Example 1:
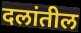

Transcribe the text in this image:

दलांतील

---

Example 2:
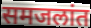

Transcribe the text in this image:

समजलांत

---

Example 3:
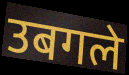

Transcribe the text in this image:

उबगले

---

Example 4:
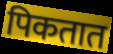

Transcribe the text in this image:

पिकतात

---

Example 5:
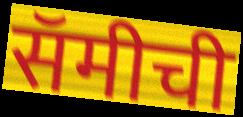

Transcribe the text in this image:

सॅमीची